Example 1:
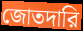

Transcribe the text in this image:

জোতদারি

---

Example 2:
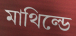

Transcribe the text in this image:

মাথিল্ডে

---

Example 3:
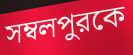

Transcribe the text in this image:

সম্বলপুরকে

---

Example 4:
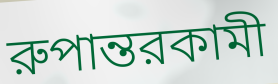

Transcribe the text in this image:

রুপান্তরকামী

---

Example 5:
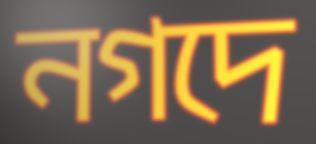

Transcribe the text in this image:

নগদে